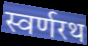
स्वर्णरथ